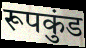
रूपकुंड